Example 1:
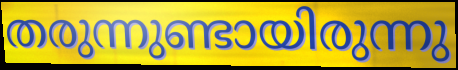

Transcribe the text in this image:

തരുന്നുണ്ടായിരുന്നു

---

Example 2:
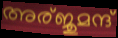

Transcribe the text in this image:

അര്ജുമന്ദ്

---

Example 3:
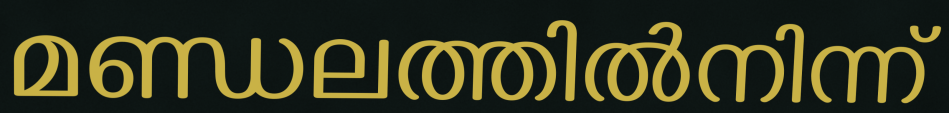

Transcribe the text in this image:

മണ്ഡലത്തിൽനിന്ന്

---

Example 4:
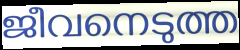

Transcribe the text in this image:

ജീവനെടുത്ത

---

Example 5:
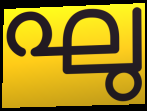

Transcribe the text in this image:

ഘു